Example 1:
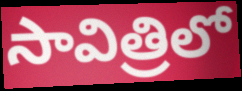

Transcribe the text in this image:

సావిత్రిలో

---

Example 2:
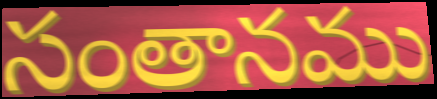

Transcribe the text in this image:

సంతానము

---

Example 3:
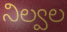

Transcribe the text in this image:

నిల్వల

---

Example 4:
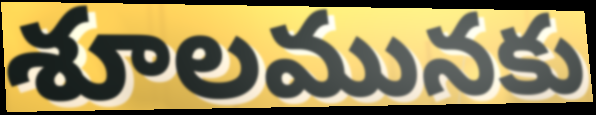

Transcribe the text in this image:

శూలమునకు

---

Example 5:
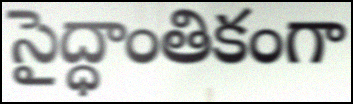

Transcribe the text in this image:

సైద్ధాంతికంగా